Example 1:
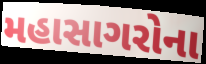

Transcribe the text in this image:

મહાસાગરોના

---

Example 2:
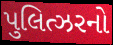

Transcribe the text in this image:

પુલિત્ઝરનો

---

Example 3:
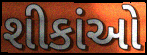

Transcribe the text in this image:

શીકાંઓ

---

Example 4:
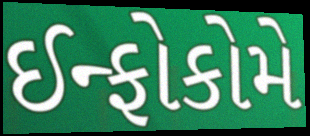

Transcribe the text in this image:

ઈન્ફોકોમે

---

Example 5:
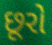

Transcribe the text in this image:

છૂરો